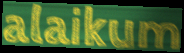
alaikum